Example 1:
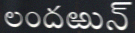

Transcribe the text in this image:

లందఱున్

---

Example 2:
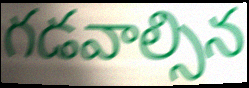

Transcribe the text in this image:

గడవాల్సిన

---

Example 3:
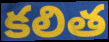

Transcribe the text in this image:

కలిత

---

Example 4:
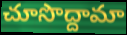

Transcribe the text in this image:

చూసొద్దామా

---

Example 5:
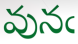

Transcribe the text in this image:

వునఁ